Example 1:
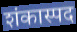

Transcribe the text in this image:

शंकास्पद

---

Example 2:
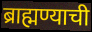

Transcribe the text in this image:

ब्राह्मण्याची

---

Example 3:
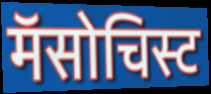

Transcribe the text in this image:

मॅसोचिस्ट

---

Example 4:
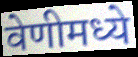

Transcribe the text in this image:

वेणीमध्ये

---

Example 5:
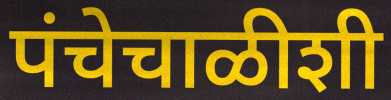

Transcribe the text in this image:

पंचेचाळीशी